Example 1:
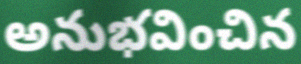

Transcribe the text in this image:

అనుభవించిన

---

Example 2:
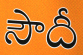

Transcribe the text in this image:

సౌదీ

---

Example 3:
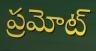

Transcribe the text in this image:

ప్రమోట్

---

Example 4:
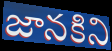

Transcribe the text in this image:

జానకిని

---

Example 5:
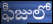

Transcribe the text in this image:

ఫీజులో